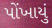
પોંખાયું